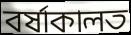
বৰ্ষাকালত